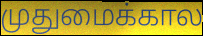
முதுமைக்கால